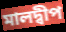
মালদ্বীপ